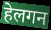
हेलगन